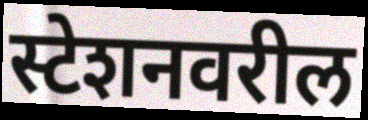
स्टेशनवरील